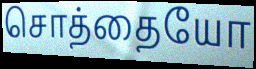
சொத்தையோ